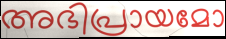
അഭിപ്രായമോ